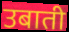
उबाती